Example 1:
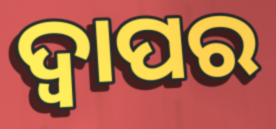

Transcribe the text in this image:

ଦ୍ୱାପର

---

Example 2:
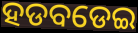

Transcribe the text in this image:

ହଡବଡେଇ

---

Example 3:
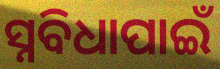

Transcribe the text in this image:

ସ୍ନବିଧାପାଇଁ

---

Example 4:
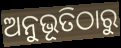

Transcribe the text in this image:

ଅନୁଭୂତିଠାରୁ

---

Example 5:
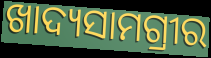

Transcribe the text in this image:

ଖାଦ୍ୟସାମଗ୍ରୀର